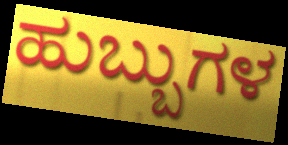
ಹುಬ್ಬುಗಳ